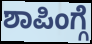
ಶಾಪಿಂಗ್ಗೆ